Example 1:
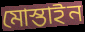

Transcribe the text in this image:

মোস্তাইন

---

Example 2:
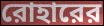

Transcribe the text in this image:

রোহারের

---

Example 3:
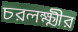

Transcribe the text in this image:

চরলক্ষ্মীর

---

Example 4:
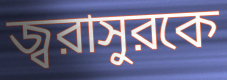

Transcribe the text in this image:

জ্বরাসুরকে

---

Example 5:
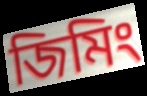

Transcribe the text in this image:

জিমিং